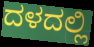
ದಳದಲ್ಲಿ